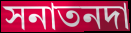
সনাতনদা